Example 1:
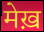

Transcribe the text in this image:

मेख़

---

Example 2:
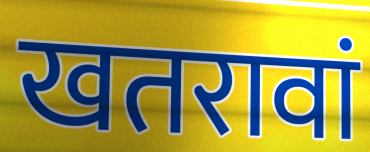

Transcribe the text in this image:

खतरावां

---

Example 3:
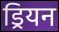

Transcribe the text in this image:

ड्रियन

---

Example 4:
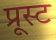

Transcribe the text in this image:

प्रूस्ट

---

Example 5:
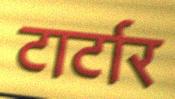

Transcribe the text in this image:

टार्टार